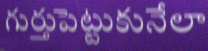
గుర్తుపెట్టుకునేలా